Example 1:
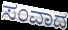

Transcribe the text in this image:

ಸಂವಾದ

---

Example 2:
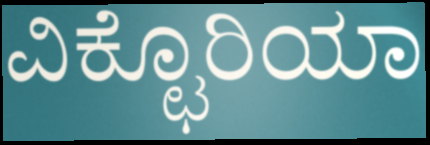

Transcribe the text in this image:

ವಿಕ್ಟೊರಿಯಾ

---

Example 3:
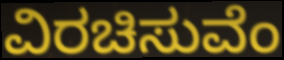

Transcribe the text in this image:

ವಿರಚಿಸುವೆಂ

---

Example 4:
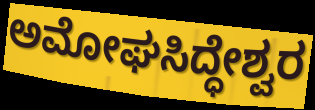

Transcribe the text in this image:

ಅಮೋಘಸಿದ್ಧೇಶ್ವರ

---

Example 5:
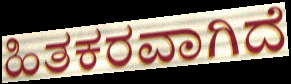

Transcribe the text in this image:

ಹಿತಕರವಾಗಿದೆ